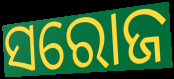
ସରୋଜ